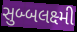
સુબ્બલક્ષ્મી